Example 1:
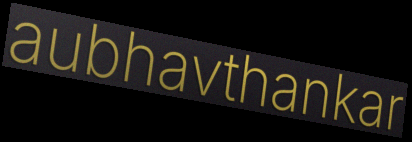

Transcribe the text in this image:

aubhavthankar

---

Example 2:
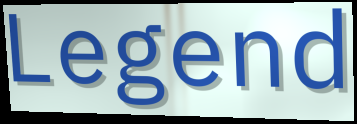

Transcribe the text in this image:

Legend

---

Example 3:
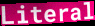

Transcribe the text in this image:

Literal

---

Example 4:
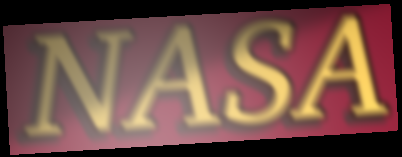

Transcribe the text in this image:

NASA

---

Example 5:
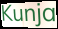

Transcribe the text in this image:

Kunja